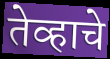
तेव्हाचे